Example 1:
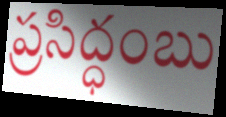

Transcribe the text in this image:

ప్రసిద్ధంబు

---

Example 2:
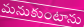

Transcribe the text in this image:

మనుకుంటాను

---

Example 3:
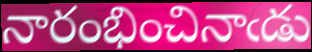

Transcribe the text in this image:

నారంభించినాఁడు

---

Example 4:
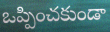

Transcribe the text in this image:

ఒప్పించకుండా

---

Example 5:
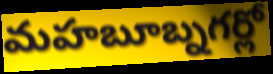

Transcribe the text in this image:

మహబూబ్నగర్లో